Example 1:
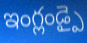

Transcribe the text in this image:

ఇంగ్లండ్పై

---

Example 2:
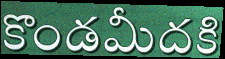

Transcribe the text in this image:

కొండమీదకి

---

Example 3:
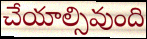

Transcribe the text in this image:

చేయాల్సివుంది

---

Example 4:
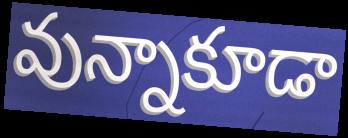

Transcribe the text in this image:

వున్నాకూడా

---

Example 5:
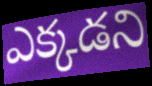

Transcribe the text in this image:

ఎక్కడని